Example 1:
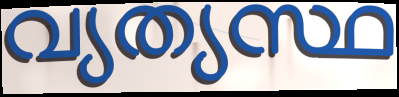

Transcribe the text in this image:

വ്യത്യസ്ഥ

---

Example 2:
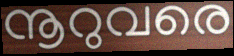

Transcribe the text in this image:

നൂറുവരെ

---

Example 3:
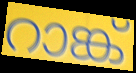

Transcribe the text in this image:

റാങ്ക്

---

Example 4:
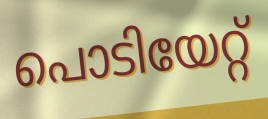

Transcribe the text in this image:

പൊടിയേറ്റ്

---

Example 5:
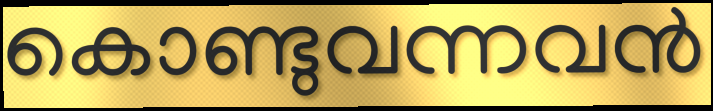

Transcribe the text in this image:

കൊണ്ടുവന്നവൻ